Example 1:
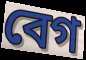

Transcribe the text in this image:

বেগ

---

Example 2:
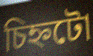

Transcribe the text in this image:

চিহ্নটো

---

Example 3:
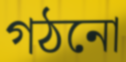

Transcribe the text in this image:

গঠনো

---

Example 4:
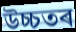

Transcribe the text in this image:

উচ্চতৰ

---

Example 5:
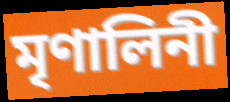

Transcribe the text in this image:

মৃণালিনী